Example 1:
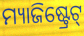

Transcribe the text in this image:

ମ୍ୟାଜିଷ୍ଟ୍ରେଟ୍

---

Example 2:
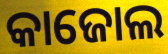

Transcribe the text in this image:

କାଜୋଲ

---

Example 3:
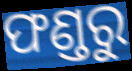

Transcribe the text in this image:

ଫଣ୍ଡରୁ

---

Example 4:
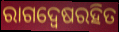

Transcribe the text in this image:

ରାଗଦ୍ୱେଷରହିତ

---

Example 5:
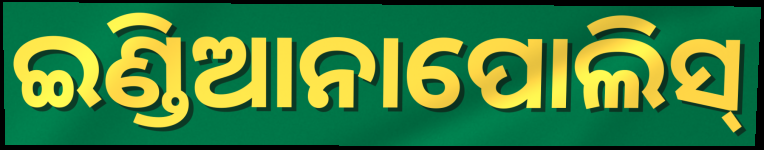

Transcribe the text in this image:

ଇଣ୍ଡିଆନାପୋଲିସ୍